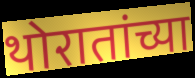
थोरातांच्या